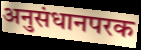
अनुसंधानपरक